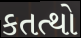
કતત્થો